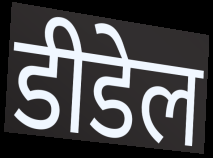
डीडेल